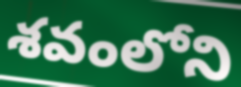
శవంలోని